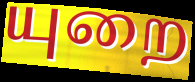
யுறை